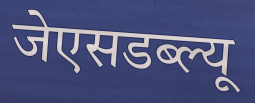
जेएसडब्ल्यू